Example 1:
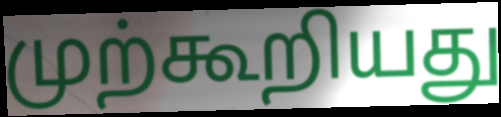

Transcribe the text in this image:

முற்கூறியது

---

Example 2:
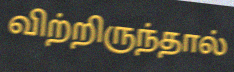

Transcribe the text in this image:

விற்றிருந்தால்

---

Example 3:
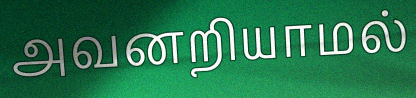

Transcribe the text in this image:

அவனறியாமல்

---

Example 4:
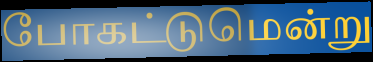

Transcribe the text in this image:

போகட்டுமென்று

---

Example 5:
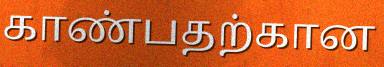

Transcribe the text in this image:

காண்பதற்கான